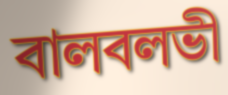
বালবলভী